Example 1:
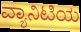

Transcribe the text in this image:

ವ್ಯಾನಿಟಿಯ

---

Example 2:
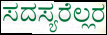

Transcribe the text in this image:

ಸದಸ್ಯರೆಲ್ಲರ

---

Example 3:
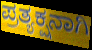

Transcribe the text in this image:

ಪ್ರತ್ಯಕ್ಷನಾಗಿ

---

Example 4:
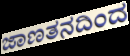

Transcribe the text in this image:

ಜಾಣತನದಿಂದ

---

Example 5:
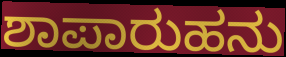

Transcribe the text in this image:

ಶಾಪಾರುಹನು